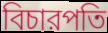
বিচারপতি